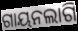
ଗାୟନଲାଗି